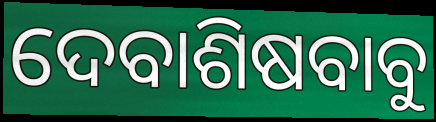
ଦେବାଶିଷବାବୁ